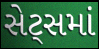
સેટ્સમાં